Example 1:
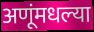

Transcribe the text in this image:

अणूंमधल्या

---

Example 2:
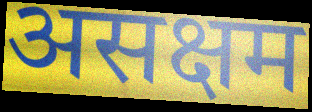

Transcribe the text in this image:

असक्षम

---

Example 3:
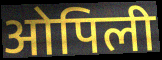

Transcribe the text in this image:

ओपिली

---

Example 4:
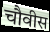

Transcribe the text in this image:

चौवीस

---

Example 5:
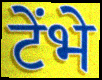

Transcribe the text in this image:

टेंभे